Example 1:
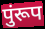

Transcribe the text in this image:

पुंरूप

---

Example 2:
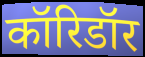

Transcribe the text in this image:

कॉरिडॉर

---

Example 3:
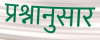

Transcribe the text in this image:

प्रश्नानुसार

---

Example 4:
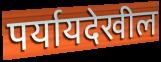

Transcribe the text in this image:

पर्यायदेखील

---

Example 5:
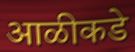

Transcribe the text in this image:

आळीकडे